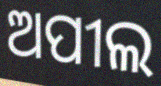
ଅପୀଲ